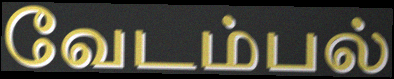
வேடம்பல்